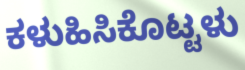
ಕಳುಹಿಸಿಕೊಟ್ಟಳು